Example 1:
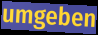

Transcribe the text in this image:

umgeben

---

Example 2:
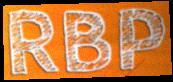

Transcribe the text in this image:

RBP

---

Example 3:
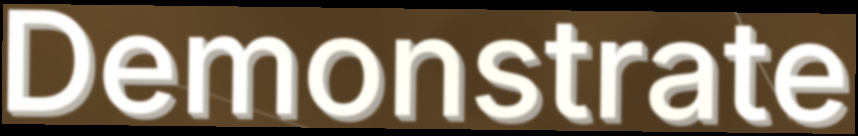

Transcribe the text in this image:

Demonstrate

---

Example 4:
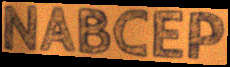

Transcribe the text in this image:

NABCEP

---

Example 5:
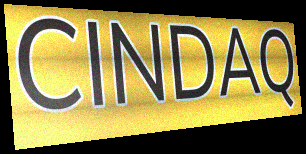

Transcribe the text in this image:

CINDAQ